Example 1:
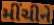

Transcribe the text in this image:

મીંચીને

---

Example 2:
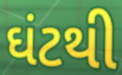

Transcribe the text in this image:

ઘંટથી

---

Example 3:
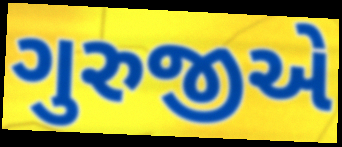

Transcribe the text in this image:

ગુરુજીએ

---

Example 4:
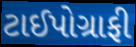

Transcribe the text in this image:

ટાઈપોગ્રાફી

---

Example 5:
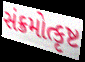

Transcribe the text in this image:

સંક્રમોત્કૃષ્ટ